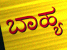
ಬಾಹ್ಯ